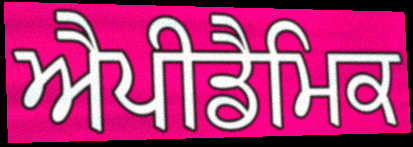
ਐਪੀਡੈਮਿਕ